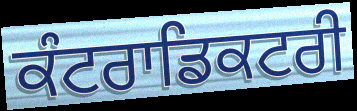
ਕੰਟਰਾਡਿਕਟਰੀ